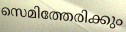
സെമിത്തേരിക്കും